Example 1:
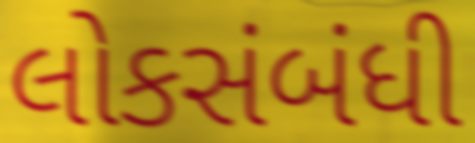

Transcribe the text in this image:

લોકસંબંધી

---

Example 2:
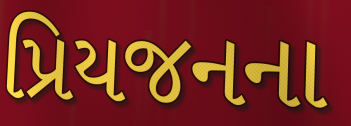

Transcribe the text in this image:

પ્રિયજનના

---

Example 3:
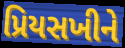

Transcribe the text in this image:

પ્રિયસખીને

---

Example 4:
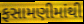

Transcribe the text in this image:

ફસામણીમાંથી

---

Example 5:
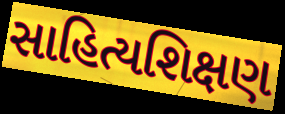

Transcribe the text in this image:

સાહિત્યશિક્ષણ